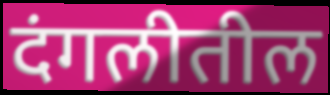
दंगलीतील